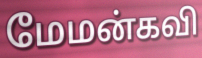
மேமன்கவி